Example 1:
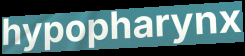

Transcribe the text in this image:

hypopharynx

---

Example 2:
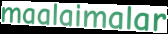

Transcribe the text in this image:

maalaimalar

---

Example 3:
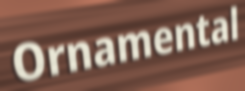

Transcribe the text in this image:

Ornamental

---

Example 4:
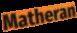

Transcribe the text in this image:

Matheran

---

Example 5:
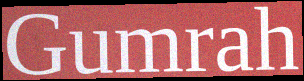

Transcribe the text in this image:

Gumrah